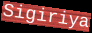
Sigiriya